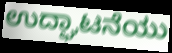
ಉದ್ಘಾಟನೆಯು